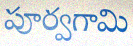
పూర్వగామి